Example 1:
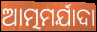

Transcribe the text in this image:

ଆତ୍ମମର୍ଯାଦା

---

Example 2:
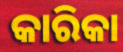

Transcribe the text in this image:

କାରିକା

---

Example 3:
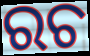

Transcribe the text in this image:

ରଚ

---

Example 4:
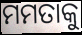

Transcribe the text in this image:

ମମତାକୁ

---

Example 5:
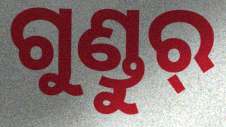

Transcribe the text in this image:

ଗୁଣ୍ଡୁର୍